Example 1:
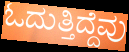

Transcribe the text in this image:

ಓದುತ್ತಿದ್ದೆವು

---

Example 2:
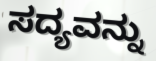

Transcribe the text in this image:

ಸದ್ಯವನ್ನು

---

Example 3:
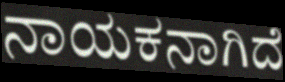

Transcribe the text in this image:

ನಾಯಕನಾಗಿದೆ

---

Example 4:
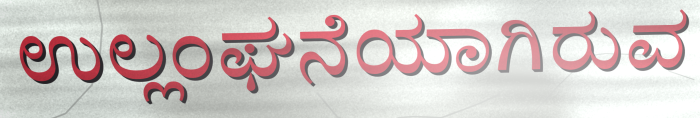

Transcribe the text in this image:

ಉಲ್ಲಂಘನೆಯಾಗಿರುವ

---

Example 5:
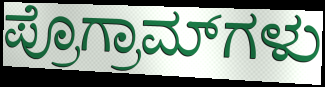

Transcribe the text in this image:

ಪ್ರೊಗ್ರಾಮ್‌ಗಳು